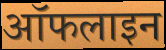
ऑफलाइन